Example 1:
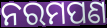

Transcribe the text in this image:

ନରମପଣ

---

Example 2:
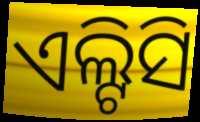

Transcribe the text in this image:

ଏଲ୍ଟିସି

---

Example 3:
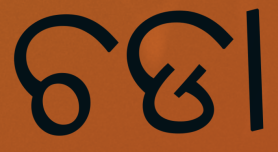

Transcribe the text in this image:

ଚଡା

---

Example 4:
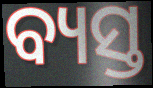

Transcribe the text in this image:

ବ୍ୟସ୍ତ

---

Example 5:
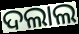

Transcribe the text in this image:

ଦଲାଲ